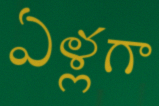
ఏళ్లగా